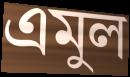
এমুল